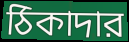
ঠিকাদার